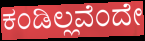
ಕಂಡಿಲ್ಲವೆಂದೇ